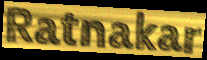
Ratnakar